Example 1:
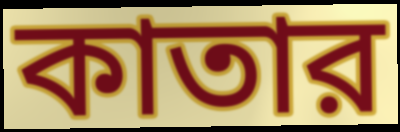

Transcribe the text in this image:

কাতার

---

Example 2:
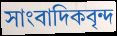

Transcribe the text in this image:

সাংবাদিকবৃন্দ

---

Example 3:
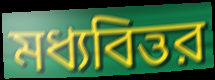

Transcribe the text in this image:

মধ্যবিত্তর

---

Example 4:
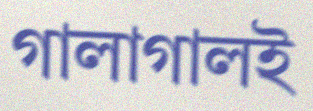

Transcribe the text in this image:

গালাগালই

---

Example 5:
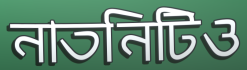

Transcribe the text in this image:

নাতনিটিও